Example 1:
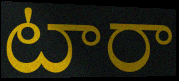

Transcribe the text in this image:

టారా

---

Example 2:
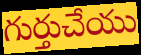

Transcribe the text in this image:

గుర్తుచేయు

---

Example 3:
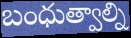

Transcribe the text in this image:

బంధుత్వాల్ని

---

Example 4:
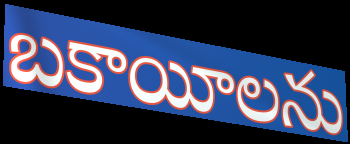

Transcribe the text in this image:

బకాయీలను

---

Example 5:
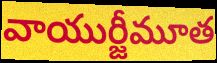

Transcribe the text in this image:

వాయుర్జీమూత